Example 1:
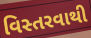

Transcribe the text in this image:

વિસ્તરવાથી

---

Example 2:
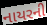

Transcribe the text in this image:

નાયરની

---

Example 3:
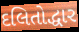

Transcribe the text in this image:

દલિતોદ્ધાર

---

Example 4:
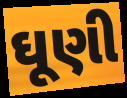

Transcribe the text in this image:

ઘૂણી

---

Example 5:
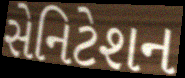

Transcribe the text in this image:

સેનિટેશન